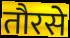
तौरसे